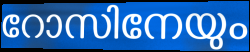
റോസിനേയും